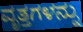
ವೃತ್ತಗಳನ್ನು